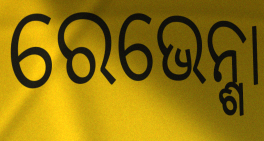
ରେଭେନ୍ଶା